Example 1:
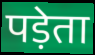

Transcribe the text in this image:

पड़ेता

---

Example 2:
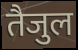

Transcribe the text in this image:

तैजुल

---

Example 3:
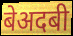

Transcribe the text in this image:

बेअदबी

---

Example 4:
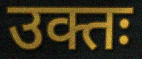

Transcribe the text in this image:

उक्तः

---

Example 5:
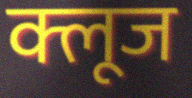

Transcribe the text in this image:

क्लूज